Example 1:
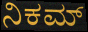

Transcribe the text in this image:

ನಿಕಮ್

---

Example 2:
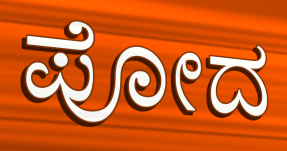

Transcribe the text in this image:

ಪೋದ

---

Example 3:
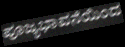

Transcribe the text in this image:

ಪೂಜ್ಯಭಾವನೆಯಿಂದ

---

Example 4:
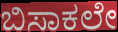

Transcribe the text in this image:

ಬಿಸಾಕಲೇ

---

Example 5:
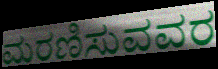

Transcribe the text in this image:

ಮರಣಿಸುವವರ